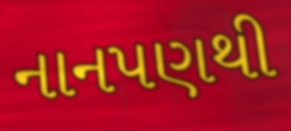
નાનપણથી